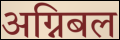
अग्निबल